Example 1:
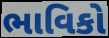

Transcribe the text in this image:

ભાવિકો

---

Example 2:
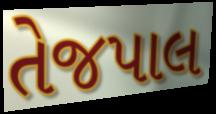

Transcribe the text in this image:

તેજપાલ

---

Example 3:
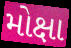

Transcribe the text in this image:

મોક્ષા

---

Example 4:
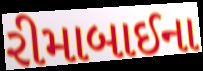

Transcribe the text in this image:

રીમાબાઈના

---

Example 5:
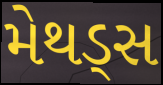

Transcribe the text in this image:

મેથડ્સ